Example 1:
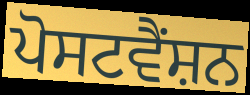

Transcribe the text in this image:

ਪੋਸਟਵੈਂਸ਼ਨ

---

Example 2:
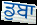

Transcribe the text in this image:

ਡੁਬਾ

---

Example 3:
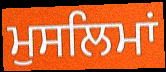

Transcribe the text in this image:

ਮੁਸਲਿਮਾਂ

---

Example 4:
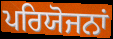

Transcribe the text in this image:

ਪਰਿਯੋਜਨਾਂ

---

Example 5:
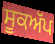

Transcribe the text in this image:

ਸੂਕਅੱਪ